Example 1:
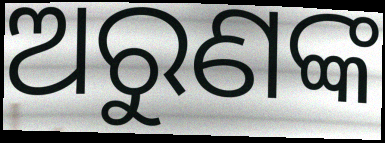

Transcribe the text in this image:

ଅରୁଣଙ୍କ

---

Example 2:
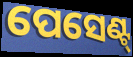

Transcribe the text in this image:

ପେସେଣ୍ଟ୍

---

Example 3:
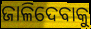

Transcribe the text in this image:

ଜାଳିଦେବାକୁ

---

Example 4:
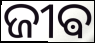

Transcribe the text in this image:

ଜୀଵ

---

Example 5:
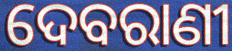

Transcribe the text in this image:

ଦେବରାଣୀ